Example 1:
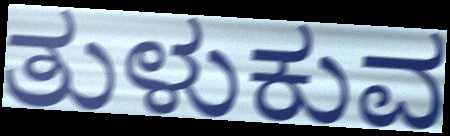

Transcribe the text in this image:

ತುಳುಕುವ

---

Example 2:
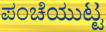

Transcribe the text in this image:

ಪಂಚೆಯುಟ್ಟ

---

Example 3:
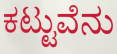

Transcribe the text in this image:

ಕಟ್ಟುವೆನು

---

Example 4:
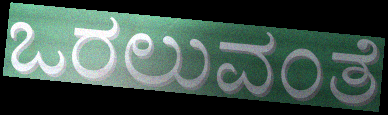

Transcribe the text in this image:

ಒರಲುವಂತೆ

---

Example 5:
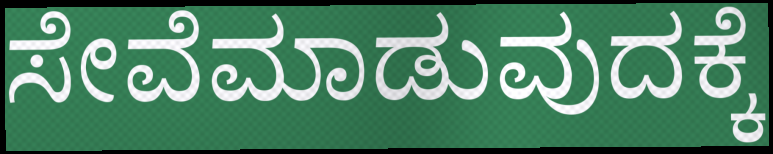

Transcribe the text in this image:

ಸೇವೆಮಾಡುವುದಕ್ಕೆ